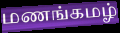
மணங்கமழ்